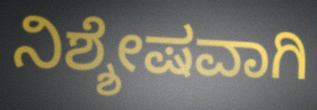
ನಿಶ್ಶೇಷವಾಗಿ